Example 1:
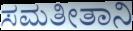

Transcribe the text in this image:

ಸಮತೀತಾನಿ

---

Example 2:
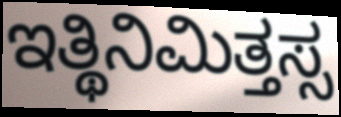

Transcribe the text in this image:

ಇತ್ಥಿನಿಮಿತ್ತಸ್ಸ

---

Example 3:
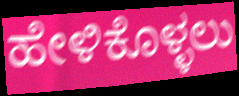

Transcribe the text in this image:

ಹೇಳಿಕೊಳ್ಳಲು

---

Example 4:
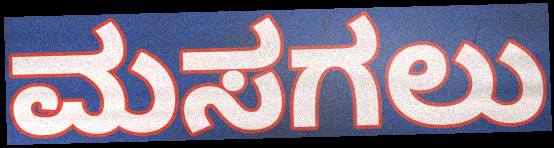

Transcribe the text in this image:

ಮಸಗಲು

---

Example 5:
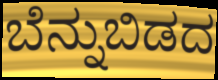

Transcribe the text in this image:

ಬೆನ್ನುಬಿಡದ